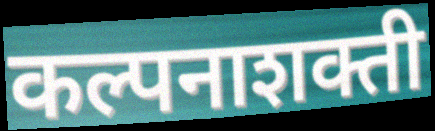
कल्पनाशक्ती